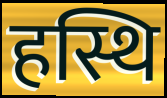
हस्थि